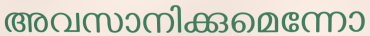
അവസാനിക്കുമെന്നോ